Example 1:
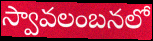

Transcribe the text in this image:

స్వావలంబనలో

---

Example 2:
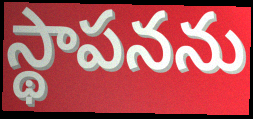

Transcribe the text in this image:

స్థాపనను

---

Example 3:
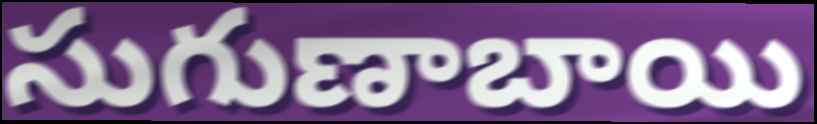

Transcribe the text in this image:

సుగుణాబాయి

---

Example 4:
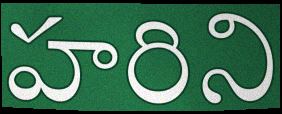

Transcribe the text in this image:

హరిని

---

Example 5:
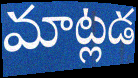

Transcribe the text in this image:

మాట్లడ